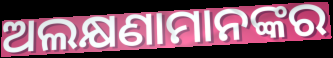
ଅଲକ୍ଷଣାମାନଙ୍କର